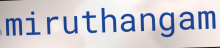
miruthangam